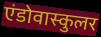
एंडोवास्कुलर